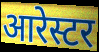
आरेस्टर